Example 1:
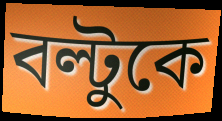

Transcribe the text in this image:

বল্টুকে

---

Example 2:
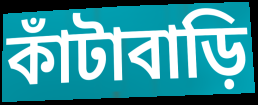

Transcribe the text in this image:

কাঁটাবাড়ি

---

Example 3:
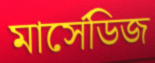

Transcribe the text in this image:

মার্সেডিজ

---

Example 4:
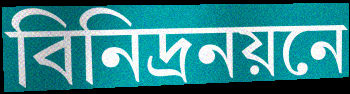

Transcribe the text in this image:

বিনিদ্রনয়নে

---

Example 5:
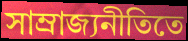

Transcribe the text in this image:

সাম্রাজ্যনীতিতে